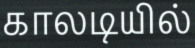
காலடியில்